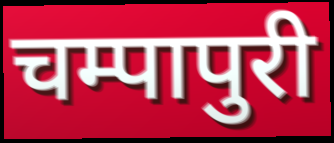
चम्पापुरी